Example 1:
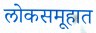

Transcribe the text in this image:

लोकसमूहात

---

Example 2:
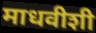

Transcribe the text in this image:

माधवीशी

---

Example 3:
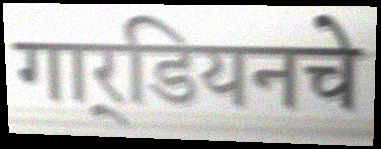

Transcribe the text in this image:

गार्डियनचे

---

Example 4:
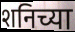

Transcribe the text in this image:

शनिच्या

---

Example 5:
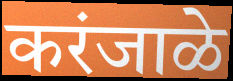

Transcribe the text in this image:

करंजाळे